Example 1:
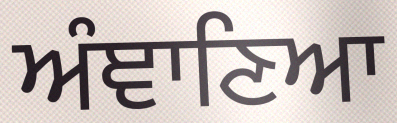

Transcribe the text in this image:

ਅੰਞਾਣਿਆ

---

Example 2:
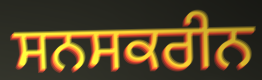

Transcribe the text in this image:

ਸਨਸਕਰੀਨ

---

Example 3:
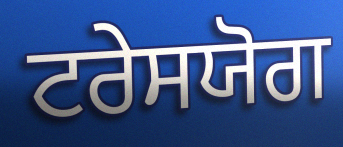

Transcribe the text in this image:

ਟਰੇਸਯੋਗ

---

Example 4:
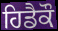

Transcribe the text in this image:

ਹਿਡੈਕੌ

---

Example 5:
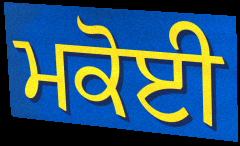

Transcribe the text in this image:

ਮਕੋਈ